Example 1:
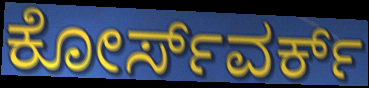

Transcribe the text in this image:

ಕೋರ್ಸ್‌ವರ್ಕ್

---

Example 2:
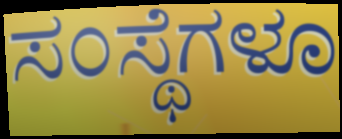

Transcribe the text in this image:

ಸಂಸ್ಥೆಗಳೂ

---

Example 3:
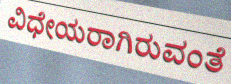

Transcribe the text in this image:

ವಿಧೇಯರಾಗಿರುವಂತೆ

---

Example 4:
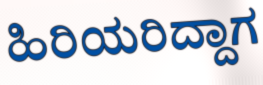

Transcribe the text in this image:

ಹಿರಿಯರಿದ್ದಾಗ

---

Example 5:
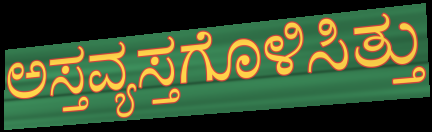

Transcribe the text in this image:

ಅಸ್ತವ್ಯಸ್ತಗೊಳಿಸಿತ್ತು